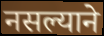
नसल्‍याने